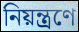
নিয়ন্ত্ৰণে